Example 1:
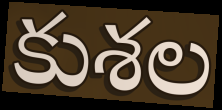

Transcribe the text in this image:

కుశల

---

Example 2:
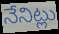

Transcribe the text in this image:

నేనిట్లు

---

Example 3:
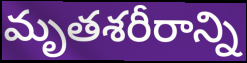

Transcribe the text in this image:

మృతశరీరాన్ని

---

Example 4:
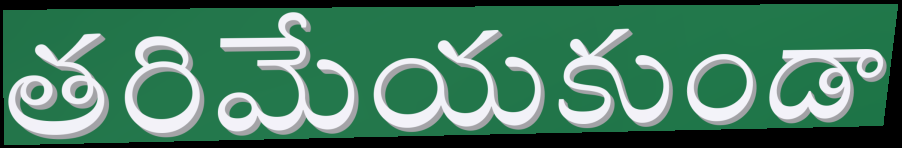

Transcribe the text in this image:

తరిమేయకుండా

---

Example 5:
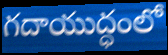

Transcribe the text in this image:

గదాయుద్ధంలో